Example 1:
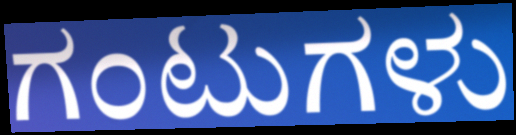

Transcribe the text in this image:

ಗಂಟುಗಳು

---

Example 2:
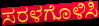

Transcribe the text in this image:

ಸರಳಗೊಳಿಸಿ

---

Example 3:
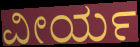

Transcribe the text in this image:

ವೀರ್ಯ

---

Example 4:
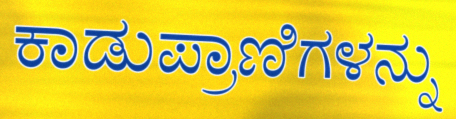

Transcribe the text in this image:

ಕಾಡುಪ್ರಾಣಿಗಳನ್ನು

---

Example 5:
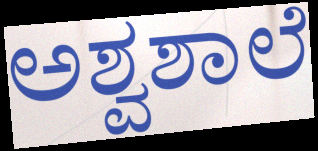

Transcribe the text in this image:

ಅಶ್ವಶಾಲೆ